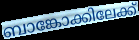
ബാങ്കോക്കിലേക്ക്